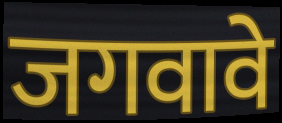
जगवावे